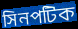
সিনপটিক